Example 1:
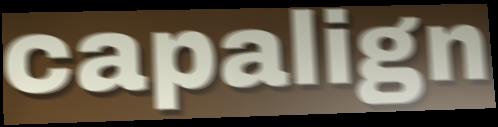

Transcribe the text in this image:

capalign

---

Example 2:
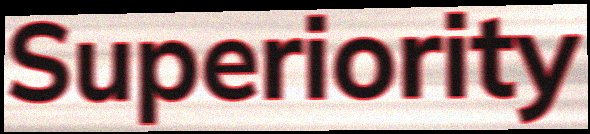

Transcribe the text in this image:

Superiority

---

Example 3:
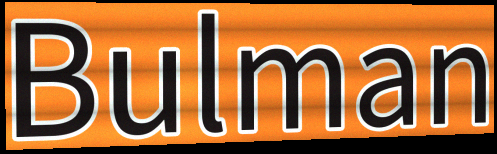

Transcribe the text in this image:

Bulman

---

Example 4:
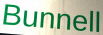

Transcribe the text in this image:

Bunnell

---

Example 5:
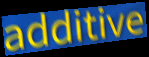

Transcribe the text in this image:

additive